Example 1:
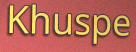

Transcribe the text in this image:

Khuspe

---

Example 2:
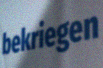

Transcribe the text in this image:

bekriegen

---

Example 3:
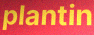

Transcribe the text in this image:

plantin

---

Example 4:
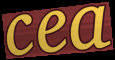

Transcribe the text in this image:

cea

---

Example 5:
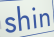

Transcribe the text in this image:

shin